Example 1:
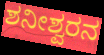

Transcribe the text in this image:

ಶನೀಶ್ವರನ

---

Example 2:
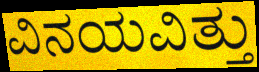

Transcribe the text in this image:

ವಿನಯವಿತ್ತು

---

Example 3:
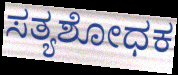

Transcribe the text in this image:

ಸತ್ಯಶೋಧಕ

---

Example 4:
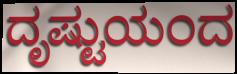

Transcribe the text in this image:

ದೃಷ್ಟುಯಂದ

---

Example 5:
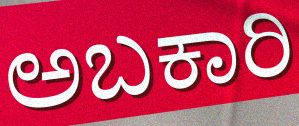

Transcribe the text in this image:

ಅಬಕಾರಿ